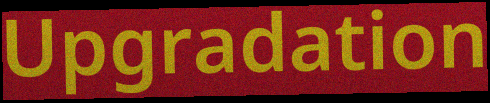
Upgradation